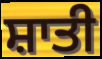
ਸ਼ਾਤੀ